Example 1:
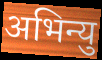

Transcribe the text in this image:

अभिन्यु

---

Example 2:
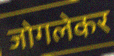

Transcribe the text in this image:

जोगलेकर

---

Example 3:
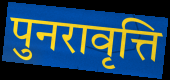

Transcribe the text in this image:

पुनरावृत्ति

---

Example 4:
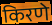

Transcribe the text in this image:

किरणे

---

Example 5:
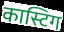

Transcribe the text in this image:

कास्टिग